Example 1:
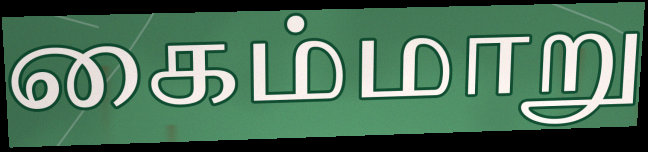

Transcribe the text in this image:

கைம்மாறு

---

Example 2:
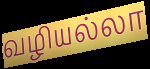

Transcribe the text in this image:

வழியல்லா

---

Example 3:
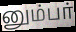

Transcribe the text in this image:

னும்பர்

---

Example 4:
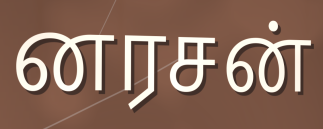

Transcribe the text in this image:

னரசன்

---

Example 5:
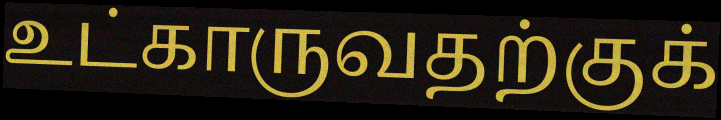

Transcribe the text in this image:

உட்காருவதற்குக்